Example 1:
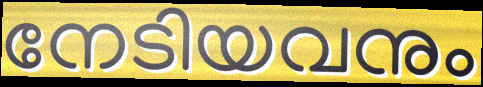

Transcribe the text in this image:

നേടിയവനും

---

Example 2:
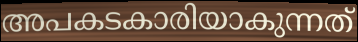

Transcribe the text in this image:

അപകടകാരിയാകുന്നത്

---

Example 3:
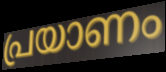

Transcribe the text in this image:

പ്രയാണം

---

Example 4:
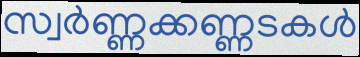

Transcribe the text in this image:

സ്വർണ്ണക്കണ്ണടകൾ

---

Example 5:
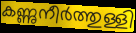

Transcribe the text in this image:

കണ്ണുനീർത്തുള്ളി